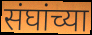
संघांच्या